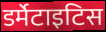
डर्मेटाइटिस